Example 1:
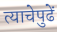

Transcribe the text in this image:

त्याचेपुढें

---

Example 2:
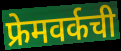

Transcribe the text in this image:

फ्रेमवर्कची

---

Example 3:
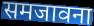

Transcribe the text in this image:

समजावना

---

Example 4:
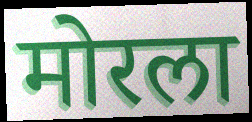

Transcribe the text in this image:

मोरला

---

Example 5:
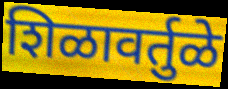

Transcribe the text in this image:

शिळावर्तुळे